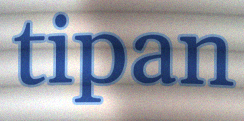
tipan